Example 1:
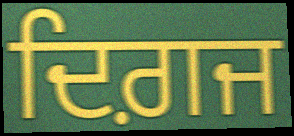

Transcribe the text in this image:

ਦਿਗ਼ਜ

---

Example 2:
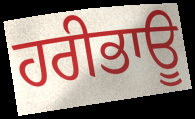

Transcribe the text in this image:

ਹਰੀਭਾਊ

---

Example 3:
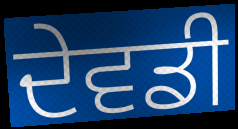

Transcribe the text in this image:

ਦੇਵਡੀ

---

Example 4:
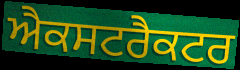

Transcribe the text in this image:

ਐਕਸਟਰੈਕਟਰ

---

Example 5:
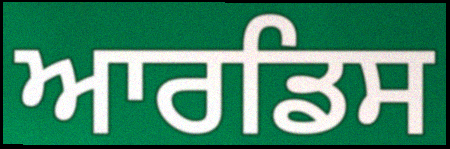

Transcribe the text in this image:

ਆਰਡਿਸ